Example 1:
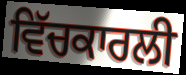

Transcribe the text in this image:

ਵਿੱਚਕਾਰਲੀ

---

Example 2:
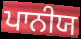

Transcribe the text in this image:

ਪਾਨੀਯ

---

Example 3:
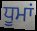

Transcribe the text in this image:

ਧੂਮਾਂ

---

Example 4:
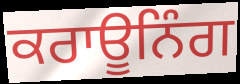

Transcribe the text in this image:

ਕਰਾਊਨਿੰਗ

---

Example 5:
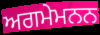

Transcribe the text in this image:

ਅਗਮੇਮਨਨ